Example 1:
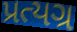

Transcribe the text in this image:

પ્રત્યગ્ર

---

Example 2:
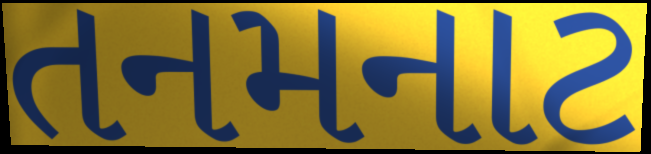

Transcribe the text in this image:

તનમનાટ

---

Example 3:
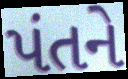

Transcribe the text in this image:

પંતને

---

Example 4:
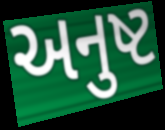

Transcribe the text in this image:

અનુષ્ટ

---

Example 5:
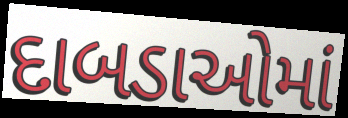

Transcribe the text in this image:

દાબડાઓમાં